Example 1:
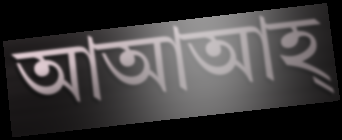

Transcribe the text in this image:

আআআহ্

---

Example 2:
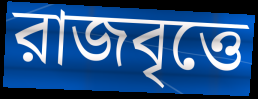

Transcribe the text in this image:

রাজবৃত্তে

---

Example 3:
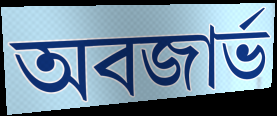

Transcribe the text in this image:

অবজার্ভ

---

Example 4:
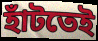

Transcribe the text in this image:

হাঁটতেই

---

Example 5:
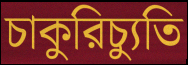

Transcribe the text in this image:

চাকুরিচ্যুতি